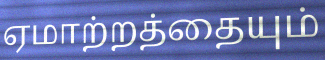
ஏமாற்றத்தையும்